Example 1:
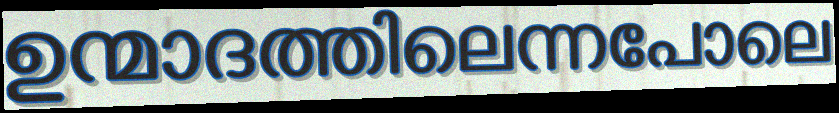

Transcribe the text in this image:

ഉന്മാദത്തിലെന്നപോലെ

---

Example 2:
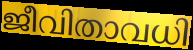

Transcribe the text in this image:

ജീവിതാവധി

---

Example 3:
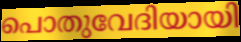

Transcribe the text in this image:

പൊതുവേദിയായി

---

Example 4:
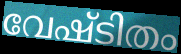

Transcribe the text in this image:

വേഷ്ടിതം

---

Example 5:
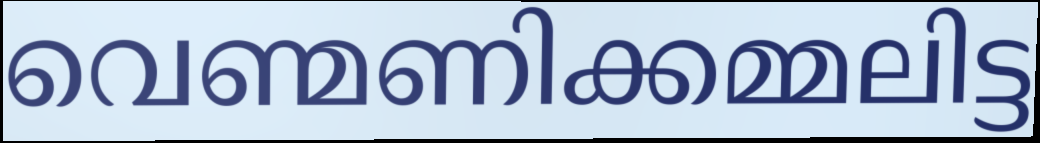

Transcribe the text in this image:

വെണ്മണിക്കമ്മലിട്ട